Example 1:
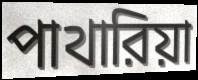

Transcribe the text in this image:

পাথারিয়া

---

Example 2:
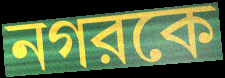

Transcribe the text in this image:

নগরকে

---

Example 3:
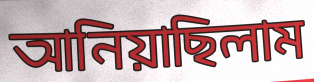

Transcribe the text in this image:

আনিয়াছিলাম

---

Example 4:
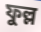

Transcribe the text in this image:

ফুল্ল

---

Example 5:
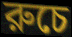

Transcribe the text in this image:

রুচে